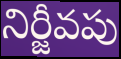
నిర్జీవపు